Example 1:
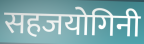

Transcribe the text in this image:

सहजयोगिनी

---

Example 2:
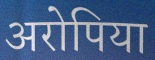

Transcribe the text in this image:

अरोपिया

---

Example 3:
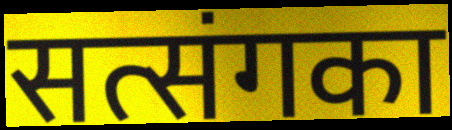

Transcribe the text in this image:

सत्संगका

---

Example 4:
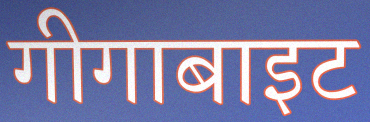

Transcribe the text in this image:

गीगाबाइट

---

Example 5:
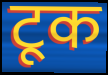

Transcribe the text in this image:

टूक